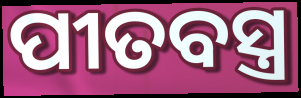
ପୀତବସ୍ତ୍ର